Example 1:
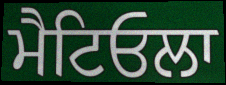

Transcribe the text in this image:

ਮੈਟਿਓਲਾ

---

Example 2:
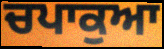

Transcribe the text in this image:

ਚਪਾਕੁਆ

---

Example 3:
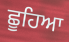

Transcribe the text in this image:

ਛੂਹਿਆ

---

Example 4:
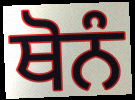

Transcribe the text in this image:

ਥੋਨੰ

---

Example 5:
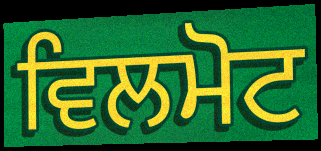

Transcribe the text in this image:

ਵਿਲਮੋਟ